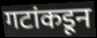
गटांकडून